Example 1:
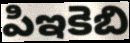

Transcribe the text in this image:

పిఇకెబి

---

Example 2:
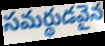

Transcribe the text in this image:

సమర్థుడవైన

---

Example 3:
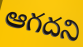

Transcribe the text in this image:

ఆగదని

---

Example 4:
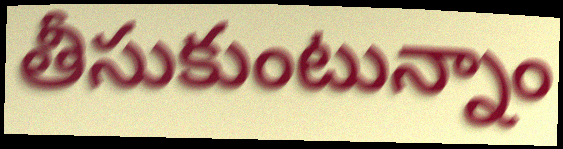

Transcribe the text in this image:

తీసుకుంటున్నాం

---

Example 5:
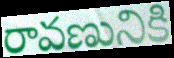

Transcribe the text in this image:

రావణునికి